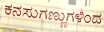
ಕನಸುಗಣ್ಣುಗಳಿಂದ